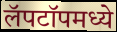
लॅपटॉपमध्ये